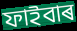
ফাইবাৰ